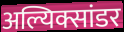
अल्यिक्सांडर